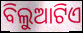
ବିଲୁଆଟିଏ